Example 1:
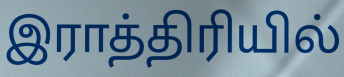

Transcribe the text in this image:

இராத்திரியில்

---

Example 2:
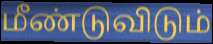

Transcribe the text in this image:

மீண்டுவிடும்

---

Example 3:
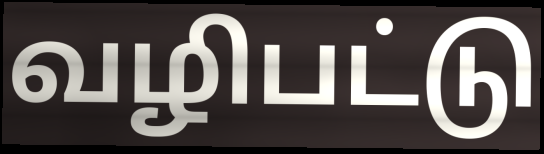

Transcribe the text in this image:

வழிபட்டு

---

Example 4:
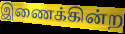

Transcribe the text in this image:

இணைக்கின்ற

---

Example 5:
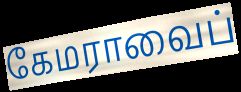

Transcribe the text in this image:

கேமராவைப்